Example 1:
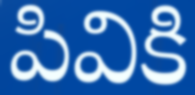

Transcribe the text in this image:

పివికి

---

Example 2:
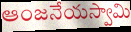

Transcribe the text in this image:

ఆంజనేయస్వామి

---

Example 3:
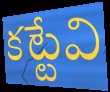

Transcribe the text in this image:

కట్టేవి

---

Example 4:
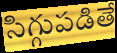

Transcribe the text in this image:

సిగ్గుపడితే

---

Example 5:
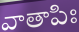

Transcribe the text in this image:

వాతాపిః